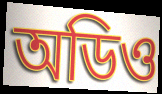
অডিও